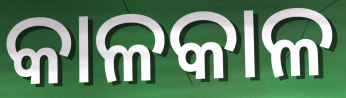
କାଳକାଳ